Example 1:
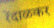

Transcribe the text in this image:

रेंदाळकर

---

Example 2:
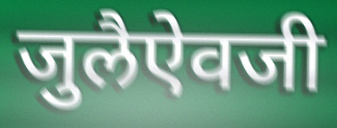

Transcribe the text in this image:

जुलैऐवजी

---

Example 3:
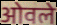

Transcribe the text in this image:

ओवले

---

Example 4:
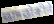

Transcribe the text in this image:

छानछोकीचे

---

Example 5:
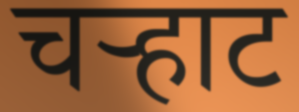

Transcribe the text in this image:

चऱ्हाट